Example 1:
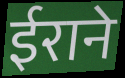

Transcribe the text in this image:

ईराने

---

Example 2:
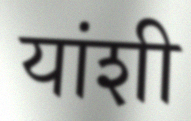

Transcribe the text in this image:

यांशी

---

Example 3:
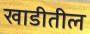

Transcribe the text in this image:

खाडीतील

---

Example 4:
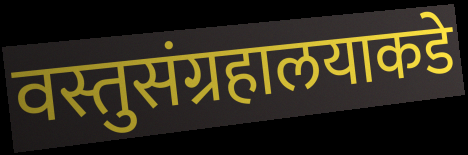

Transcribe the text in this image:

वस्तुसंग्रहालयाकडे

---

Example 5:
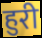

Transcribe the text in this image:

हुरी